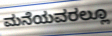
ಮನೆಯವರಲ್ಲೂ